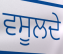
ਵਸੂਲਦੇ